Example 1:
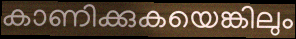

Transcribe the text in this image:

കാണിക്കുകയെങ്കിലും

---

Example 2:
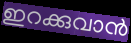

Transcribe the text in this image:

ഇറക്കുവാൻ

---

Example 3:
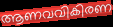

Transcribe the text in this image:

ആണവവികിരണ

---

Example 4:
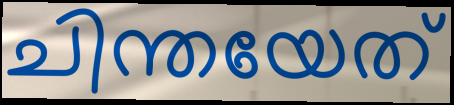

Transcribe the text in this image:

ചിന്തയേത്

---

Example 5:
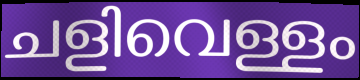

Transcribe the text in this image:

ചളിവെള്ളം